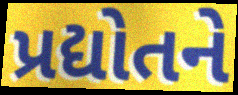
પ્રદ્યોતને